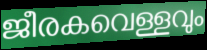
ജീരകവെള്ളവും